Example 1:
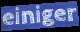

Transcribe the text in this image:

einiger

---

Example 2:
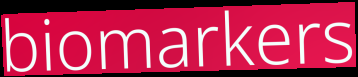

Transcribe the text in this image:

biomarkers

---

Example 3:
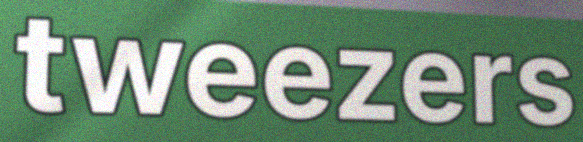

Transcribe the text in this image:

tweezers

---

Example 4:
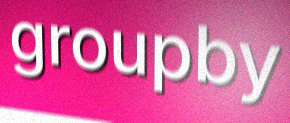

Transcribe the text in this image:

groupby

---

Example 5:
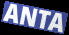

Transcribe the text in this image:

ANTA